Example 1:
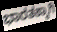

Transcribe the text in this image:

ಭಾರತಕ್ಕಾಗಿ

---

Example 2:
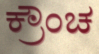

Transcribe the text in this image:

ಕ್ರೌಂಚ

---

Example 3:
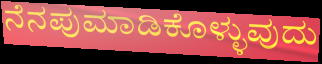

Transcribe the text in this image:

ನೆನಪುಮಾಡಿಕೊಳ್ಳುವುದು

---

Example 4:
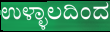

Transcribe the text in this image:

ಉಳ್ಳಾಲದಿಂದ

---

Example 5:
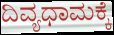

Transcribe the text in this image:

ದಿವ್ಯಧಾಮಕ್ಕೆ